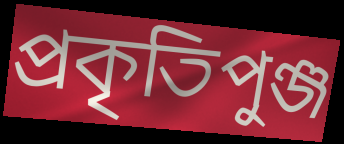
প্রকৃতিপুঞ্জ